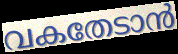
വകതേടാൻ